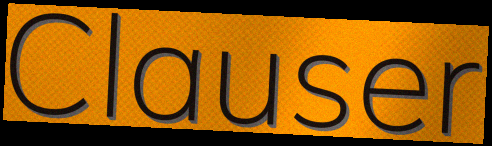
Clauser